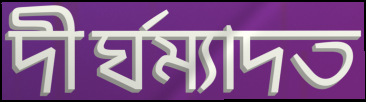
দীৰ্ঘম্যাদত